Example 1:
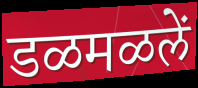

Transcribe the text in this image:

डळमळलें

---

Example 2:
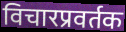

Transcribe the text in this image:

विचारप्रवर्तक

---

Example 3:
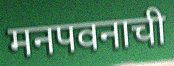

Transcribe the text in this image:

मनपवनाची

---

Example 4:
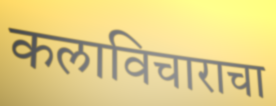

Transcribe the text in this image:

कलाविचाराचा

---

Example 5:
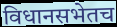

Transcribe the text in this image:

विधानसभेतच